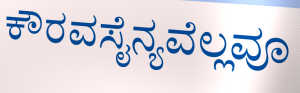
ಕೌರವಸೈನ್ಯವೆಲ್ಲವೂ